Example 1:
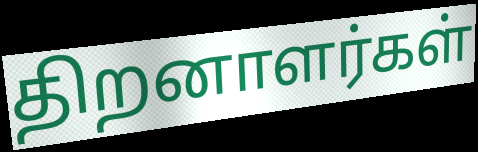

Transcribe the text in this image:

திறனாளர்கள்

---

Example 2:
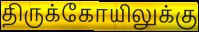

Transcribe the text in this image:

திருக்கோயிலுக்கு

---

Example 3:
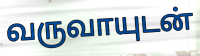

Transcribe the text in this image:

வருவாயுடன்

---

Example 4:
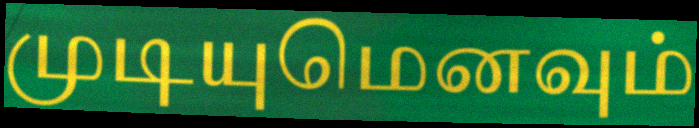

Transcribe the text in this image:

முடியுமெனவும்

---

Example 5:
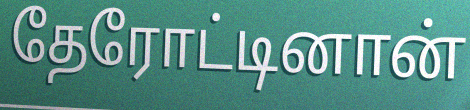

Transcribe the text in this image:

தேரோட்டினான்